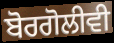
ਬੋਰਗੋਲੀਵੀ